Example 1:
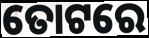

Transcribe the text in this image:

ତୋଟରେ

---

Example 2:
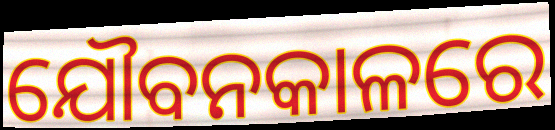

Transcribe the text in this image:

ଯୌବନକାଳରେ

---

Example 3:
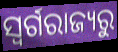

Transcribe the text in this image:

ସ୍ବର୍ଗରାଜ୍ୟରୁ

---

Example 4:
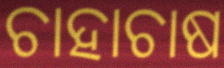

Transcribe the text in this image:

ଚାହାଚାଷ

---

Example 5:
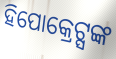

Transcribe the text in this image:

ହିପୋକ୍ରେଟ୍ସଙ୍କ